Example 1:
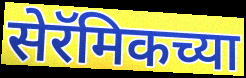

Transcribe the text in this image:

सेरॅमिकच्या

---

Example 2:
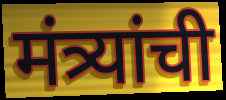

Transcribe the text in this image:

मंत्र्यांची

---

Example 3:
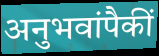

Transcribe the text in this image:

अनुभवांपैकीं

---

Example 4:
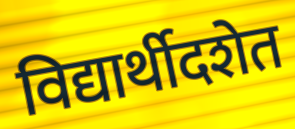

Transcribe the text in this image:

विद्यार्थीदशेत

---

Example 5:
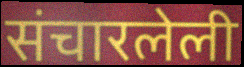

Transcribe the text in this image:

संचारलेली